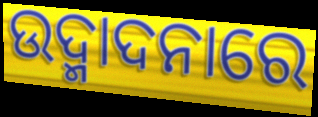
ଉଦ୍ମାଦନାରେ